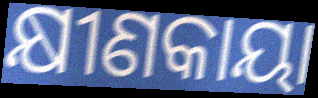
କ୍ଷୀଣକାୟା